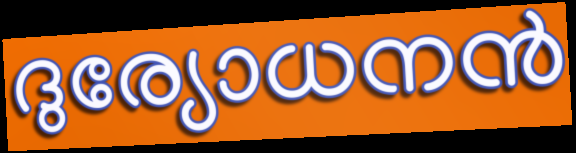
ദുര്യോധനൻ